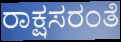
ರಾಕ್ಷಸರಂತೆ